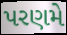
પરણમે